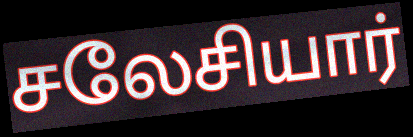
சலேசியார்